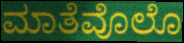
ಮಾತೆವೊಲೊ